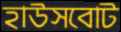
হাউসবোট